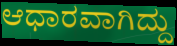
ಆಧಾರವಾಗಿದ್ದು